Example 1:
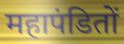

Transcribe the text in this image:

महापंडितों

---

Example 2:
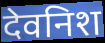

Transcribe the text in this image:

देवनिश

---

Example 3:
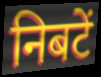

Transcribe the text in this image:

निबटें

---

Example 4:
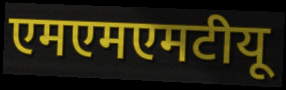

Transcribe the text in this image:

एमएमएमटीयू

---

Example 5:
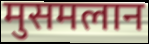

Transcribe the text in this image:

मुसमलान